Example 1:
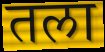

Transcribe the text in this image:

तला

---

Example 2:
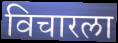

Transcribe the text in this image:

विचारला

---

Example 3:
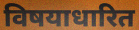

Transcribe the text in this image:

विषयाधारित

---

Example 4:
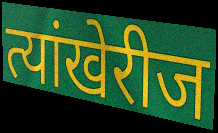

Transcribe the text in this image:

त्यांखेरीज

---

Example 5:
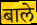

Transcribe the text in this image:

बाले